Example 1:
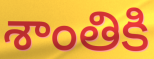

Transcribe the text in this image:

శాంతికి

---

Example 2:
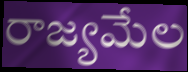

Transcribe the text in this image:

రాజ్యమేల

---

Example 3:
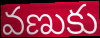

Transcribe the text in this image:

వణుకు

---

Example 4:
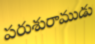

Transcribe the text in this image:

పరుశురాముడు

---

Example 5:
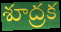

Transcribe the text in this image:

శూద్రక